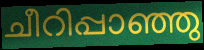
ചീറിപ്പാഞ്ഞു